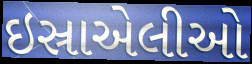
ઇસ્રાએલીઓ